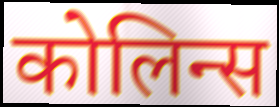
कोलिन्स